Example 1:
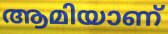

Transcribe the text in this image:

ആമിയാണ്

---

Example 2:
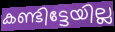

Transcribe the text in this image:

കണ്ടിട്ടേയില്ല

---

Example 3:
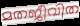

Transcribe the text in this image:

മതജീവിത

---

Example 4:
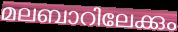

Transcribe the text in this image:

മലബാറിലേക്കും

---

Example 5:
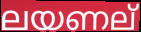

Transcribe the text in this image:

ലയണല്